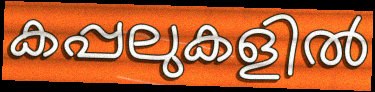
കപ്പലുകളിൽ